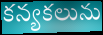
కన్యకలును